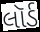
લૉર્ડ